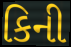
કિની